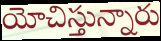
యోచిస్తున్నారు